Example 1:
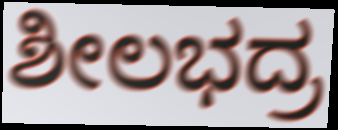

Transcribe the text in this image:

ಶೀಲಭದ್ರ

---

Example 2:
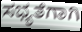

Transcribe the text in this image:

ಸಭ್ಯತೆಗಾಗಿ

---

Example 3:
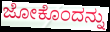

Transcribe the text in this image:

ಜೋಕೊಂದನ್ನು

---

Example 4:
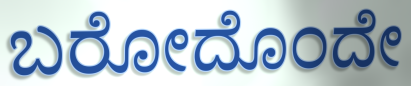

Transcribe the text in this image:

ಬರೋದೊಂದೇ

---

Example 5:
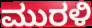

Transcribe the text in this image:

ಮುರಳಿ